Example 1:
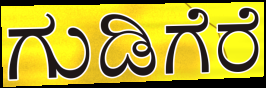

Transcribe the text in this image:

ಗುಡಿಗೆರೆ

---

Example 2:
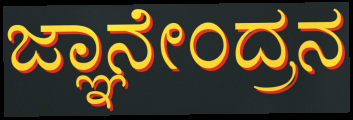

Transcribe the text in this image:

ಜ್ಞಾನೇಂದ್ರನ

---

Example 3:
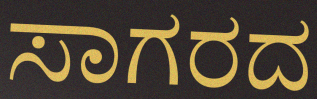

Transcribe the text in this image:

ಸಾಗರದ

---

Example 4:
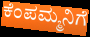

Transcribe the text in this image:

ಕೆಂಪಮ್ಮನಿಗೆ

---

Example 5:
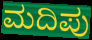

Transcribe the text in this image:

ಮದಿಪು